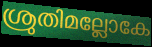
ശ്രുതിമല്ലോകേ